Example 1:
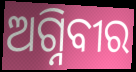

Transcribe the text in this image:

ଅଗ୍ନିବୀର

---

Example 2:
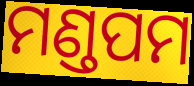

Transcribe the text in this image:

ମଣ୍ଡପମ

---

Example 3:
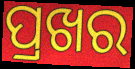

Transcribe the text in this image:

ପ୍ରଖର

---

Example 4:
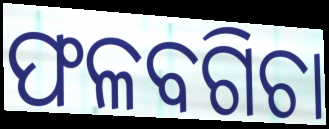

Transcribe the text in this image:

ଫଳବଗିଚା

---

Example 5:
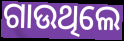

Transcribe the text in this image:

ଗାଉଥିଲେ